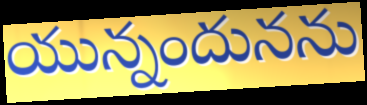
యున్నందునను